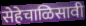
सेहेचाळिसावी